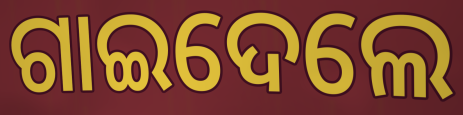
ଗାଇଦେଲେ